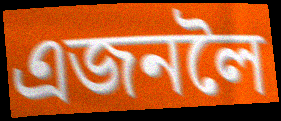
এজনলৈ